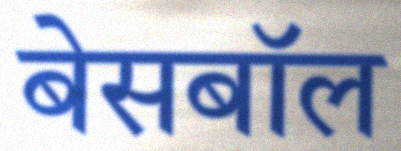
बेसबॉल